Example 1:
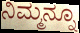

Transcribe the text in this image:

ನಿಮ್ಮನ್ನೂ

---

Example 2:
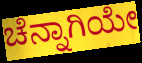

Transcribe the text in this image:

ಚೆನ್ನಾಗಿಯೇ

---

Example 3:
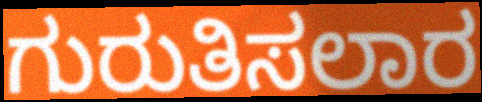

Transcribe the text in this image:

ಗುರುತಿಸಲಾರ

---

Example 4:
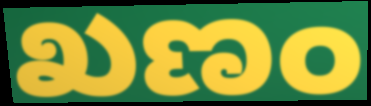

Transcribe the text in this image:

ಖಣಂ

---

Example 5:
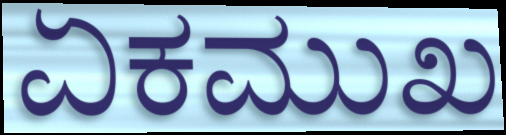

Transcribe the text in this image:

ಏಕಮುಖ